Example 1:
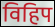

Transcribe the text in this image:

विहिप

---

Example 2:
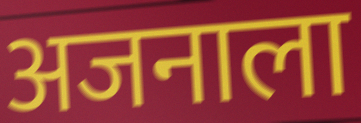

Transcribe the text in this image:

अजनाला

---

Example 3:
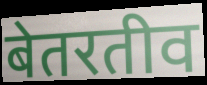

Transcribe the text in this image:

बेतरतीव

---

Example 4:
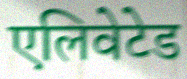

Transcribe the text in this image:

एलिवेटेड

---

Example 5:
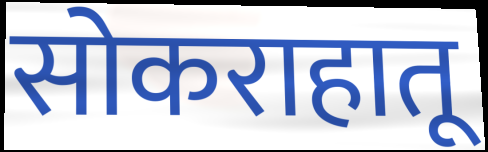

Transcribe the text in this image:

सोकराहातू